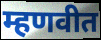
म्हणवीत